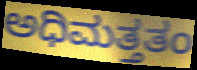
ಅಧಿಮತ್ತತಂ